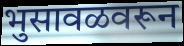
भुसावळवरून